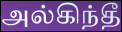
அல்கிந்தீ